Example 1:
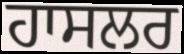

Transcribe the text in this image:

ਹਾਸਲਰ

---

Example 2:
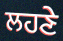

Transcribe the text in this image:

ਲਹਣੇ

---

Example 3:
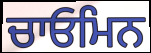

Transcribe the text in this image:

ਚਾਓਮਿਨ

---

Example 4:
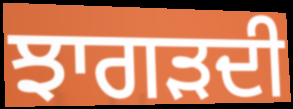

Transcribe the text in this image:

ਝਾਗੜਦੀ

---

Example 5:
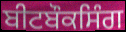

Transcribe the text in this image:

ਬੀਟਬੌਕਸਿੰਗ